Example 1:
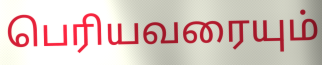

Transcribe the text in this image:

பெரியவரையும்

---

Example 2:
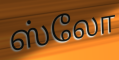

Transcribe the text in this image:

ஸ்லோ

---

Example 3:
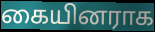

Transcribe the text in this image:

கையினராக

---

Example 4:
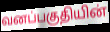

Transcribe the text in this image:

வனப்பகுதியின்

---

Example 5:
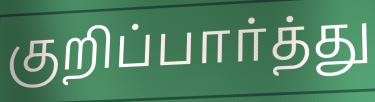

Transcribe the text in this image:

குறிப்பார்த்து